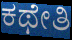
ಕಥೇತಿ